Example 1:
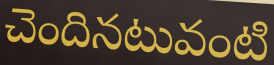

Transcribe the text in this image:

చెందినటువంటి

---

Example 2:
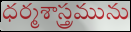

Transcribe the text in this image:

ధర్మశాస్త్రమును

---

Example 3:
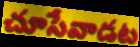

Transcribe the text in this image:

చూసేవాడట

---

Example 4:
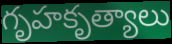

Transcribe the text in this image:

గృహకృత్యాలు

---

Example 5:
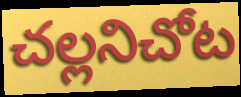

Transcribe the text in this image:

చల్లనిచోట